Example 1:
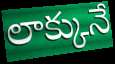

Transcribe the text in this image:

లాక్కునే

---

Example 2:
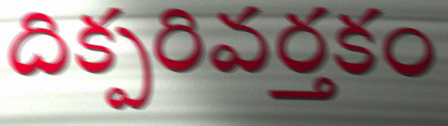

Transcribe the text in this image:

దిక్పరివర్తకం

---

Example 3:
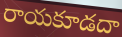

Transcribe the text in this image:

రాయకూడదా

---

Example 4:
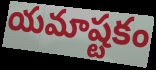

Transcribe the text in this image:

యమాష్టకం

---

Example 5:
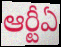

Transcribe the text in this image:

ఆర్టీఏ